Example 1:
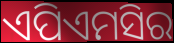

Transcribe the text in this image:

ଏପିଏମସିର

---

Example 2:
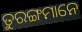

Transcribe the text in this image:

ତୁରଙ୍ଗମାନେ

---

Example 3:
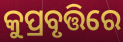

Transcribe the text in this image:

କୁପ୍ରବୃତ୍ତିରେ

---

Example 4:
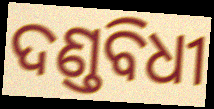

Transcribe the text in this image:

ଦଣ୍ଡବିଧୀ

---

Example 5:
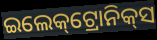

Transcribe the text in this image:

ଇଲେକ୍‌ଟ୍ରୋନିକ୍‌ସ